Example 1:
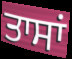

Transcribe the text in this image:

ਤਾਸਾਂ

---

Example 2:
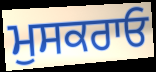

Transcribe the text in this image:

ਮੁਸਕਰਾਓ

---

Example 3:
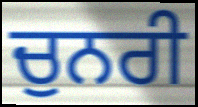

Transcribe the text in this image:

ਚੁਨਰੀ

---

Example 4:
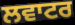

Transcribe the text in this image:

ਲਵਾਟਰ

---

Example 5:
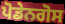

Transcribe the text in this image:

ਪੋਡੇਨਗੋਸ